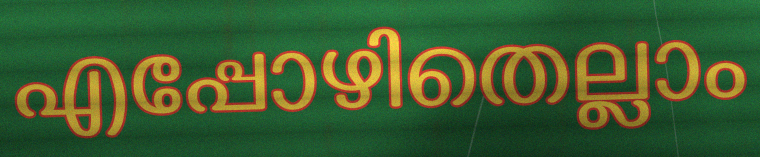
എപ്പോഴിതെല്ലാം